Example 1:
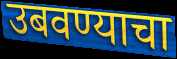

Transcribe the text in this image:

उबवण्याचा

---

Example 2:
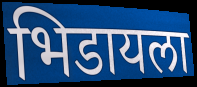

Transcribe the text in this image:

भिडायला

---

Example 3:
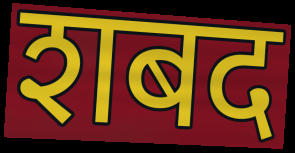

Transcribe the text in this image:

शबद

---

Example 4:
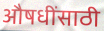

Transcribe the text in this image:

औषधींसाठी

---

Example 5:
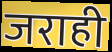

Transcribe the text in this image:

जराही